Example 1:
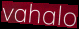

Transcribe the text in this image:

vahalo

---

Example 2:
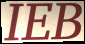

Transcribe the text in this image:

IEB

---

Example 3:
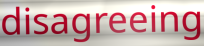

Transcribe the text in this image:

disagreeing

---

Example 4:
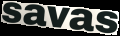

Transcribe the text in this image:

savas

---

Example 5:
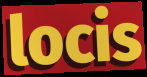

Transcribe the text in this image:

locis